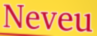
Neveu